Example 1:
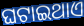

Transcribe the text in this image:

ଘଟାଇଥାଏ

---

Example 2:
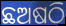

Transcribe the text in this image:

ଛଅଷଠି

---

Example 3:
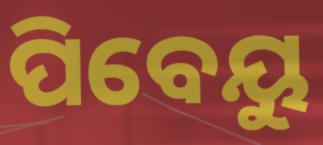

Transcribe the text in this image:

ପିବେୟୁ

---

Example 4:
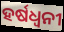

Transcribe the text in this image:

ହର୍ଷଧ୍ୱନୀ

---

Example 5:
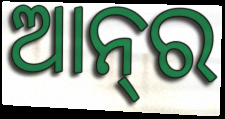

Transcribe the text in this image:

ଆନ୍‌ର